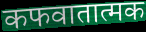
कफवातात्मक